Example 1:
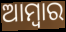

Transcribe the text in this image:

ଆମ୍ବାର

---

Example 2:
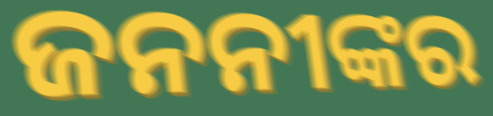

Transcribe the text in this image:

ଜନନୀଙ୍କର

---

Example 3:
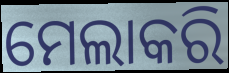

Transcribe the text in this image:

ମେଲାକରି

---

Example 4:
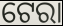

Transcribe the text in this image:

ଟେରା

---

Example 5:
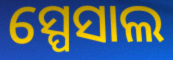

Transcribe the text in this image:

ସ୍ପେସାଲ